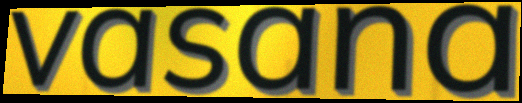
vasana